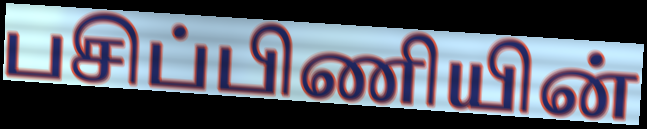
பசிப்பிணியின்